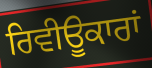
ਰਿਵੀਊਕਾਰਾਂ